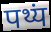
पथ्यं